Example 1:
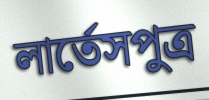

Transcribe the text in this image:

লার্তেসপুত্র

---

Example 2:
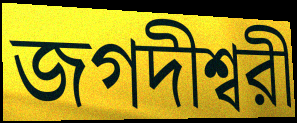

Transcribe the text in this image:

জগদীশ্বরী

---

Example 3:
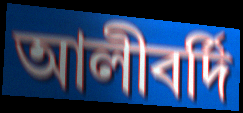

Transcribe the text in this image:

আলীবর্দি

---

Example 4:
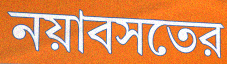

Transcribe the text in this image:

নয়াবসতের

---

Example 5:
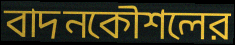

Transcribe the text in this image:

বাদনকৌশলের